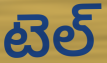
టెల్